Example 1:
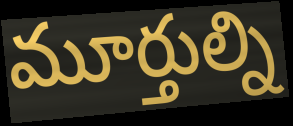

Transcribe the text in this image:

మూర్తుల్ని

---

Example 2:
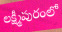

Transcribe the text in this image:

లక్ష్మీపురంలో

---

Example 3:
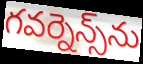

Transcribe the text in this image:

గవర్నెన్స్‌ను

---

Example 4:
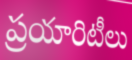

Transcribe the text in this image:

ప్రయారిటీలు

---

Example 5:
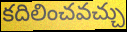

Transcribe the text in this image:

కదిలించవచ్చు